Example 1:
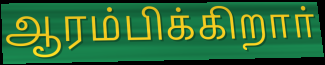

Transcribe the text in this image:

ஆரம்பிக்கிறார்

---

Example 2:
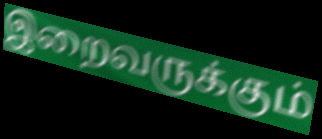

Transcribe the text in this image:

இறைவருக்கும்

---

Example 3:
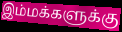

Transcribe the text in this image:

இம்மக்களுக்கு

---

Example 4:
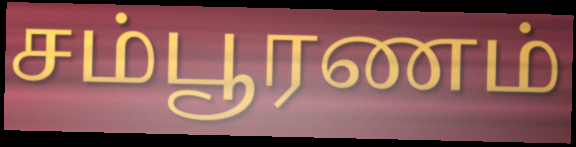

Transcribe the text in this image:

சம்பூரணம்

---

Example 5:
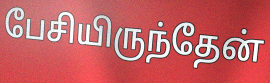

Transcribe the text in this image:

பேசியிருந்தேன்